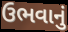
ઉભવાનું